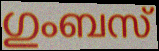
ഗുംബസ്